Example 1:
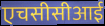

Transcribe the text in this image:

एचसीसीआई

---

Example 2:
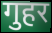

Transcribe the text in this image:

गुहर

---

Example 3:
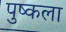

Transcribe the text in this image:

पुष्कला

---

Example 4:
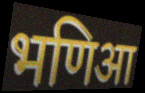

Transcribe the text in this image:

भणिआ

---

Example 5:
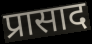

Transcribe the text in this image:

प्रासाद